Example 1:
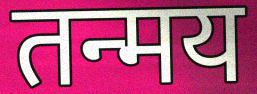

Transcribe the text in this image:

तन्‍मय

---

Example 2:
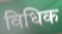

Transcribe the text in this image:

विधिक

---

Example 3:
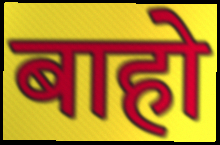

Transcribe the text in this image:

बाहो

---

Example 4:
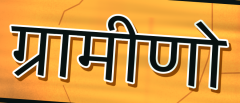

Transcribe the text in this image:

ग्रामीणो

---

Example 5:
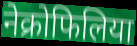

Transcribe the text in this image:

नेक्रोफिलिया